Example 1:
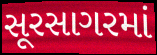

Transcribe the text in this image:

સૂરસાગરમાં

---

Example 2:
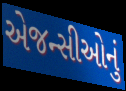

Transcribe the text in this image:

એજન્સીઓનું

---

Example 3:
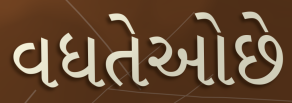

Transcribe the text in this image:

વધતેઓછે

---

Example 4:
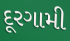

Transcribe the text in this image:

દૂરગામી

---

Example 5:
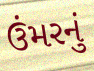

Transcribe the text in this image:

ઉંમરનું